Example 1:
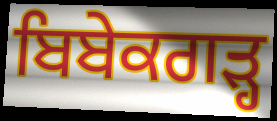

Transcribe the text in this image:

ਬਿਬੇਕਗੜ੍ਹ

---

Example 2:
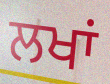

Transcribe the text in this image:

ਲਖਾਂ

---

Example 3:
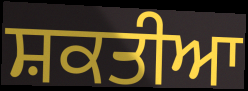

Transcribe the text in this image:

ਸ਼ਕਤੀਆ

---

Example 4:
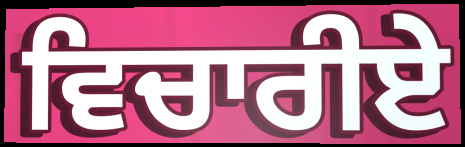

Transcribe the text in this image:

ਵਿਚਾਰੀਏ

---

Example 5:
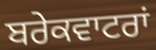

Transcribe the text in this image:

ਬਰੇਕਵਾਟਰਾਂ